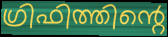
ഗ്രിഫിത്തിന്റെ